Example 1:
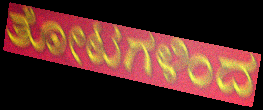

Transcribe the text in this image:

ತೋಟಗಳಿಂದ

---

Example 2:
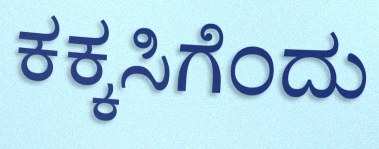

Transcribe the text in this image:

ಕಕ್ಕಸಿಗೆಂದು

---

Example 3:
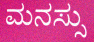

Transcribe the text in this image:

ಮನಸ್ಸು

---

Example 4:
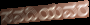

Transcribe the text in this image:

ಸನದಿಯವರ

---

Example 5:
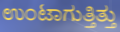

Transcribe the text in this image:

ಉಂಟಾಗುತ್ತಿತ್ತು